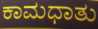
ಕಾಮಧಾತು